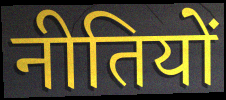
नीतियों